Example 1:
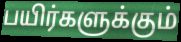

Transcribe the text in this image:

பயிர்களுக்கும்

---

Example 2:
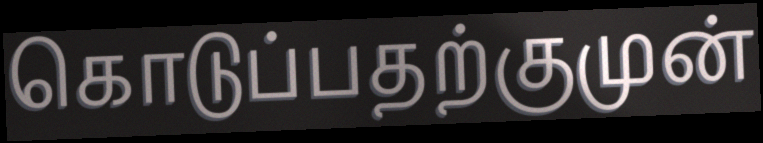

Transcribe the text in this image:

கொடுப்பதற்குமுன்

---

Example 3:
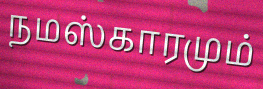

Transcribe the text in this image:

நமஸ்காரமும்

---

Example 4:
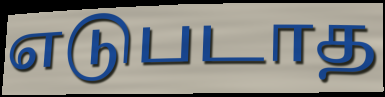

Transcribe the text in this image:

எடுபடாத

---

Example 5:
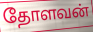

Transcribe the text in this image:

தோளவன்